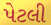
પેટલી